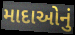
માદાઓનું